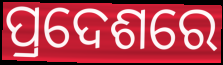
ପ୍ରଦେଶରେ